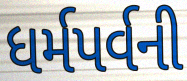
ધર્મપર્વની